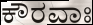
ಕೌರವಾಃ